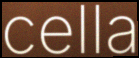
cella